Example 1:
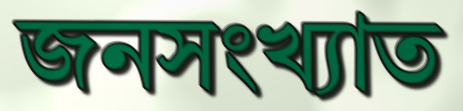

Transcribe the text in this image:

জনসংখ্যাত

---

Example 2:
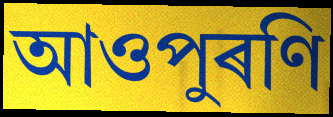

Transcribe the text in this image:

আওপুৰণি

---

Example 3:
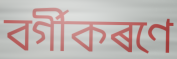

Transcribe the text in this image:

বৰ্গীকৰণে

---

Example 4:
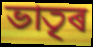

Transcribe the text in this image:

ভাতৃৰ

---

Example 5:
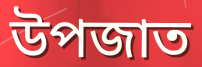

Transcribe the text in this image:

উপজাত